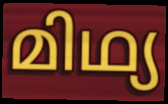
മിഥ്യ